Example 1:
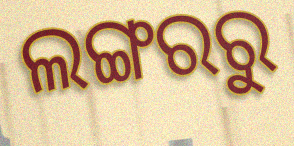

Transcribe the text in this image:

ଲଙ୍ଗରରୁ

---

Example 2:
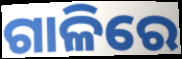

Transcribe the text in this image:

ଗାଳିରେ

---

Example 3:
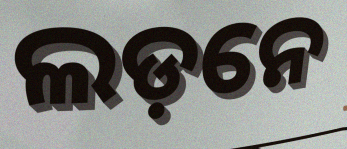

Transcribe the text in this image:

ଲଡ଼ନେ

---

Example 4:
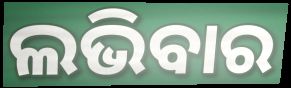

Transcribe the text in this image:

ଲଭିବାର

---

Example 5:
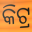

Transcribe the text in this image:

କିଟ୍ର